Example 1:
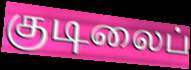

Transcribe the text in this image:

குடிலைப்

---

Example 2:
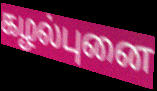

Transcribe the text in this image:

கழல்புனை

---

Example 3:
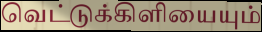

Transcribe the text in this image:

வெட்டுக்கிளியையும்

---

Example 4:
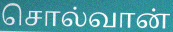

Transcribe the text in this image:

சொல்வான்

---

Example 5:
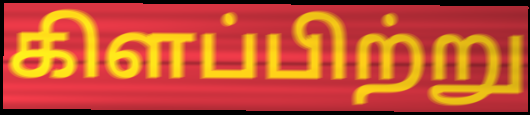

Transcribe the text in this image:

கிளப்பிற்று